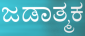
ಜಡಾತ್ಮಕ